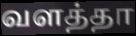
வளத்தா